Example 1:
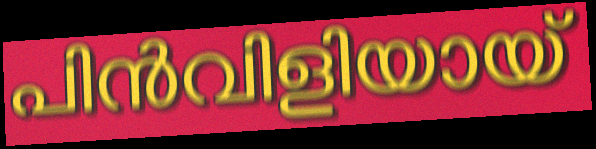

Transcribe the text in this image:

പിൻവിളിയായ്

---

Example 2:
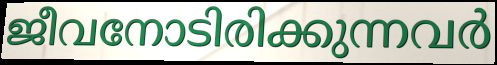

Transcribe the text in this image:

ജീവനോടിരിക്കുന്നവർ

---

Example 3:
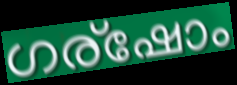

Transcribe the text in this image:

ഗര്ഷോം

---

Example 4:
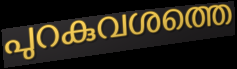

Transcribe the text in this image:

പുറകുവശത്തെ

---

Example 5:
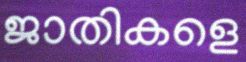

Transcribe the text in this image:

ജാതികളെ